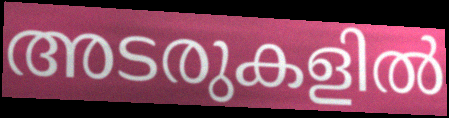
അടരുകളിൽ